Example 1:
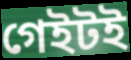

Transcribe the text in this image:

গেইটই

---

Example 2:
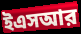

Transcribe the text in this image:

ইএসআর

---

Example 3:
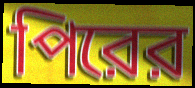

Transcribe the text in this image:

পিরের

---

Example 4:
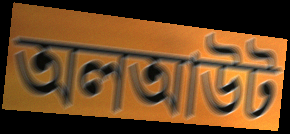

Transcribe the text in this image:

অলআউট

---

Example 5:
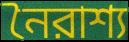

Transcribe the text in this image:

নৈরাশ্য